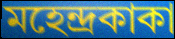
মহেন্দ্রকাকা